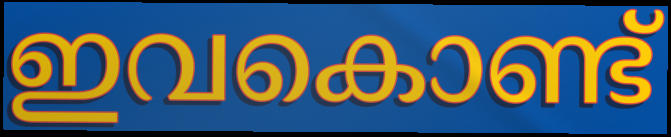
ഇവകൊണ്ട്